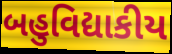
બહુવિદ્યાકીય